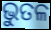
ଭୁତଳ